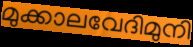
മുക്കാലവേദിമുനി